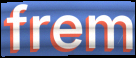
frem